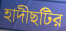
হাদীছটির